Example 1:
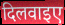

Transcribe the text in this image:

दिलवाइए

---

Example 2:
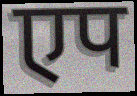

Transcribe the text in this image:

एप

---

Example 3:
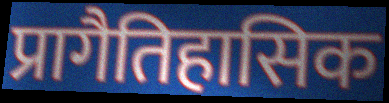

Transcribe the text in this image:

प्रागैतिहासिक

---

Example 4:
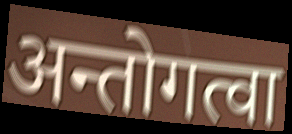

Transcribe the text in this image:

अन्तोगत्वा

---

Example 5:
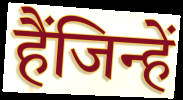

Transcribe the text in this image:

हैंजिन्हें